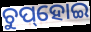
ଚୁପ୍‌ହୋଇ